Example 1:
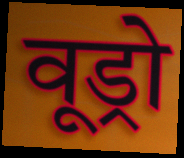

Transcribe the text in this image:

वूड्रो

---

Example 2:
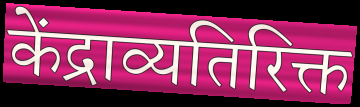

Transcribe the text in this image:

केंद्राव्यतिरिक्त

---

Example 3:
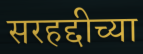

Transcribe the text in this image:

सरहद्दीच्या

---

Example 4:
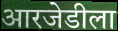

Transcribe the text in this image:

आरजेडीला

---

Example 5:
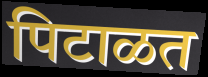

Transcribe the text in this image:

पिटाळत